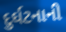
દુર્ઘટનાની